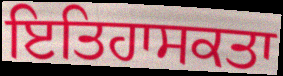
ਇਤਿਹਾਸਕਤਾ